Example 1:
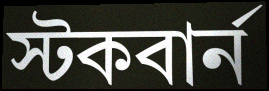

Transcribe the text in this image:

স্টকবার্ন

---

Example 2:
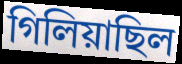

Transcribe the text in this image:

গিলিয়াছিল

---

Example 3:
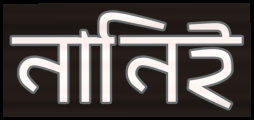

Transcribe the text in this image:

নানিই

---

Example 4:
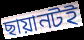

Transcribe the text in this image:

ছায়ানটই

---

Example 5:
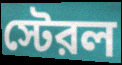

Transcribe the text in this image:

স্টেরল